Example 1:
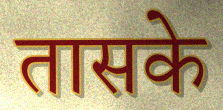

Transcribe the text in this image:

तासके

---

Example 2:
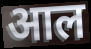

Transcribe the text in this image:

आल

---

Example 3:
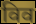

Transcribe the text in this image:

विव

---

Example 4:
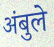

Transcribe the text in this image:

अंबुले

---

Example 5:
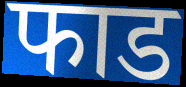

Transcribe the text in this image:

फाड